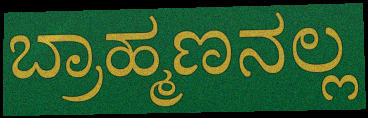
ಬ್ರಾಹ್ಮಣನಲ್ಲ